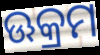
ଊକ୍ରମ